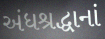
અંધશ્રદ્ધાનાં